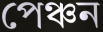
পেঞ্চন